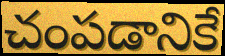
చంపడానికే